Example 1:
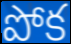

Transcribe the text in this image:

పోక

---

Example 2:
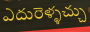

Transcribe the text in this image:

ఎదురెళ్ళచ్చు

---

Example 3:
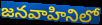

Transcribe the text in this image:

జనవాహినిలో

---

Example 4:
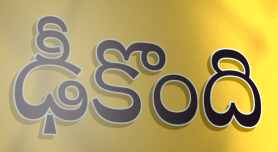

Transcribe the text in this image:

ఢీకొంది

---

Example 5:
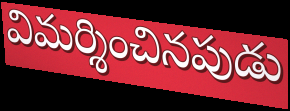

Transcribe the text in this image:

విమర్శించినపుడు